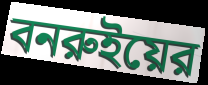
বনরুইয়ের